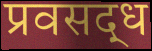
प्रवसद्ध